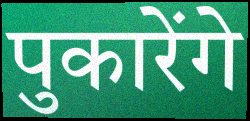
पुकारेंगे